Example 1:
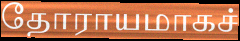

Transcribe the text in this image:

தோராயமாகச்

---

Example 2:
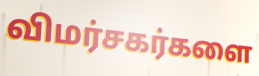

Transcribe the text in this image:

விமர்சகர்களை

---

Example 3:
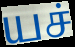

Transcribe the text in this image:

யச்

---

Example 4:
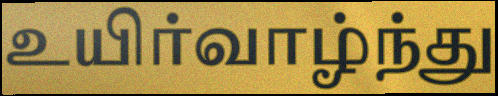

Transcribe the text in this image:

உயிர்வாழ்ந்து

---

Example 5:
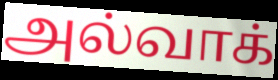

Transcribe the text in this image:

அல்வாக்